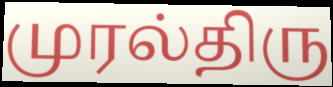
முரல்திரு